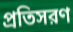
প্রতিসরণ